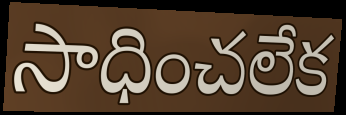
సాధించలేక